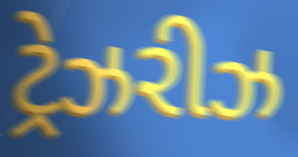
ટ્રેઝરીઝ